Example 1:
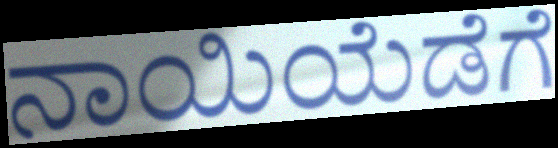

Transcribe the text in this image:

ನಾಯಿಯೆಡೆಗೆ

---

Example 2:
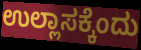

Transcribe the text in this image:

ಉಲ್ಲಾಸಕ್ಕೆಂದು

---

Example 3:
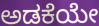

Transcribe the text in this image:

ಅಡಕೆಯೇ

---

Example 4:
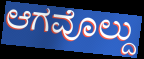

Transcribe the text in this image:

ಆಗವೊಲ್ದು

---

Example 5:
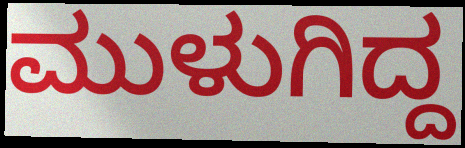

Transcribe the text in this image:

ಮುಳುಗಿದ್ದ